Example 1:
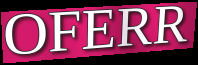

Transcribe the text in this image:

OFERR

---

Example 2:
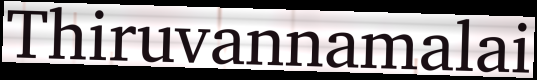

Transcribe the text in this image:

Thiruvannamalai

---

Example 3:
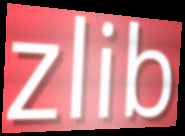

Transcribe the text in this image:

zlib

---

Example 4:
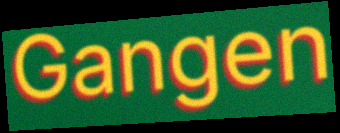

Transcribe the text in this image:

Gangen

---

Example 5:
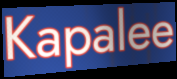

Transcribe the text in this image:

Kapalee